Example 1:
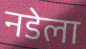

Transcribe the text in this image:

नडेला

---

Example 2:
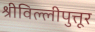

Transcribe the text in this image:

श्रीविल्लीपुत्तूर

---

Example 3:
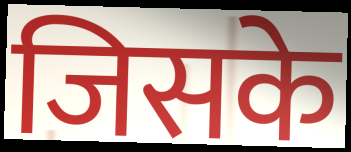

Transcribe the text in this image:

जिसके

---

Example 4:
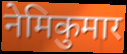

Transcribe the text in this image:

नेमिकुमार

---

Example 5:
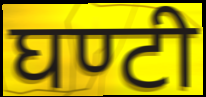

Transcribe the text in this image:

घण्टी